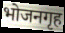
भोजनगृह